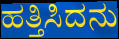
ಹತ್ತಿಸಿದನು